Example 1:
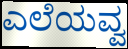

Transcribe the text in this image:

ಎಲೆಯವ್ವ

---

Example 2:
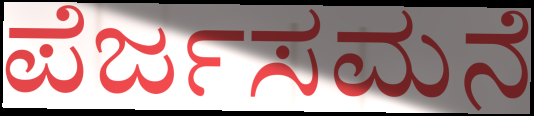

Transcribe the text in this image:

ಪೆರ್ಜಸಮನೆ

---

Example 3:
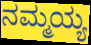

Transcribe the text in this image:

ನಮ್ಮಯ್ಯ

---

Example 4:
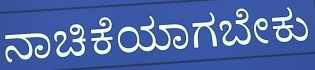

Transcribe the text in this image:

ನಾಚಿಕೆಯಾಗಬೇಕು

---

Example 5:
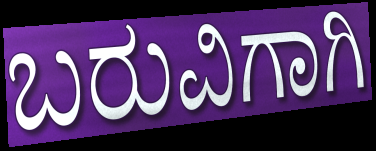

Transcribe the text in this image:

ಬರುವಿಗಾಗಿ